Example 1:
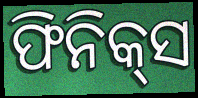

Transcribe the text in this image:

ଫିନିକ୍‍ସ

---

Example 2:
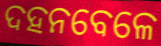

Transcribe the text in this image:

ଦହନବେଳେ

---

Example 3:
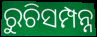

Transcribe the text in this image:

ରୁଚିସମ୍ପନ୍ନ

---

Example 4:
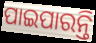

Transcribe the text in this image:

ପାଇପାରନ୍ତି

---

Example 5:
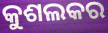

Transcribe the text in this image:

କୁଶଲକର